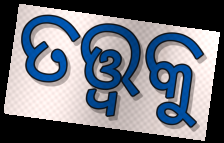
ତତ୍ତ୍ଵକୁ